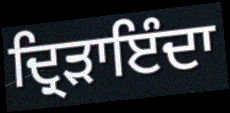
ਦ੍ਰਿੜਾਇੰਦਾ